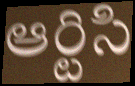
ఆర్టిసి